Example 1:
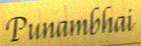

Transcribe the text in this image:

Punambhai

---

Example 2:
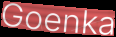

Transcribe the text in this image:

Goenka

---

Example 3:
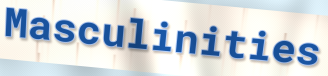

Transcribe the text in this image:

Masculinities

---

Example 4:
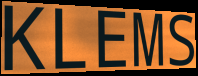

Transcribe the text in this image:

KLEMS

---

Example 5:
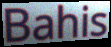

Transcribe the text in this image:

Bahis